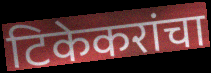
टिकेकरांचा